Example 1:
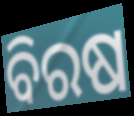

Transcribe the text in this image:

ବିରଷ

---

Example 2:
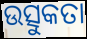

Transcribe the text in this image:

ଉତ୍ସୁକତା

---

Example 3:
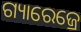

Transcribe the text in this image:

ଗ୍ୟାରେଜ୍ରେ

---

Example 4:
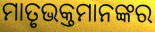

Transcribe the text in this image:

ମାତୃଭକ୍ତମାନଙ୍କର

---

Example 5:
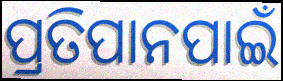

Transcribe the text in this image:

ପ୍ରତିପାନପାଇଁ